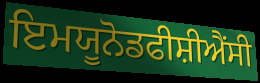
ਇਮਯੂਨੋਡਫੀਸ਼ੀਐਂਸੀ